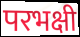
परभक्षी